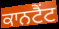
ਕਾਨਟੈਂਟ